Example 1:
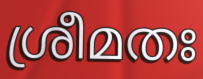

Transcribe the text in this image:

ശ്രീമതഃ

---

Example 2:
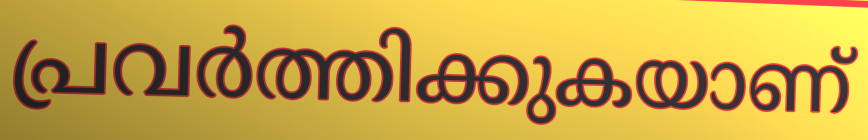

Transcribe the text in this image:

പ്രവർത്തിക്കുകയാണ്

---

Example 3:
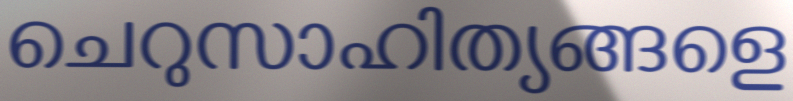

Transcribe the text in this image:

ചെറുസാഹിത്യങ്ങളെ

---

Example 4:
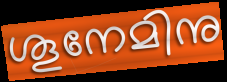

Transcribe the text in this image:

ശൂനേമിനു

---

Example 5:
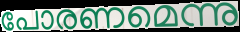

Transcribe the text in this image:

പോരണമെന്നു